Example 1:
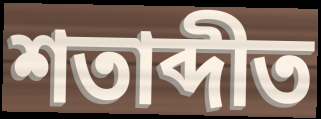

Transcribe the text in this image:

শতাব্দীত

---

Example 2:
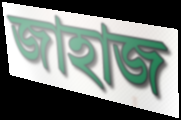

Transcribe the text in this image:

জাহাজ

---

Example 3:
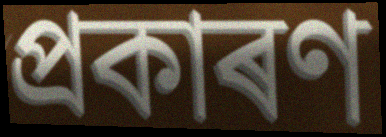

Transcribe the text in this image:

প্ৰকাৰণ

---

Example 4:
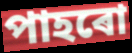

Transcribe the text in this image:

পাহৰো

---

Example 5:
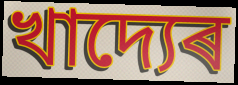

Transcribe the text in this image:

খাদ্যেৰ